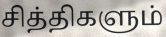
சித்திகளும்